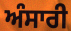
ਅੰਸਾਰੀ